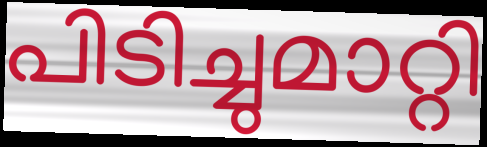
പിടിച്ചുമാറ്റി